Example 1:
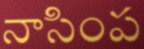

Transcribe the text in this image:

నాసింప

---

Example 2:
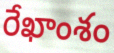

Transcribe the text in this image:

రేఖాంశం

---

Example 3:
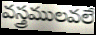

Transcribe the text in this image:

వస్త్రములవలే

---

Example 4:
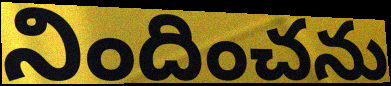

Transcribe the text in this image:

నిందించను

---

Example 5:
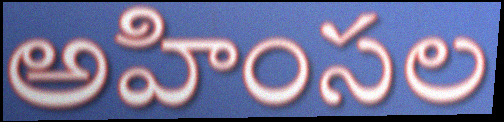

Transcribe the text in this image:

అహింసల